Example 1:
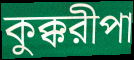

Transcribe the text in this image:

কুক্করীপা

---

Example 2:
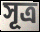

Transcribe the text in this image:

সূত্র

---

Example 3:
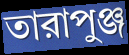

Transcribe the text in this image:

তারাপুঞ্জ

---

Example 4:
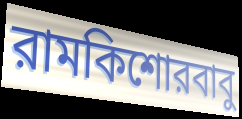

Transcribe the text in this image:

রামকিশোরবাবু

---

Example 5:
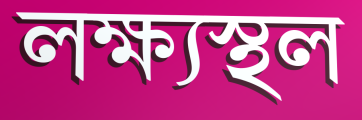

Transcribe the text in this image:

লক্ষ্যস্থল